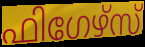
ഫിഗേഴ്സ്